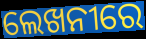
ଲେଖନୀରେ